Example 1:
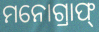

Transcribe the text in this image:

ମନୋଗ୍ରାଫ୍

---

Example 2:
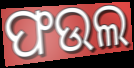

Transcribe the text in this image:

ଫଉଲ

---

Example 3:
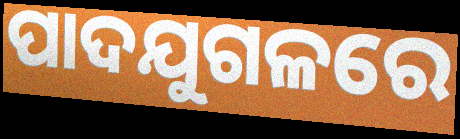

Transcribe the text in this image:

ପାଦଯୁଗଳରେ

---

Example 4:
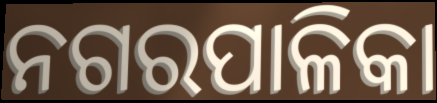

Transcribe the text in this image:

ନଗରପାଳିକା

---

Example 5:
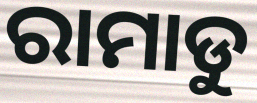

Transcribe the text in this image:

ରାମାଡୁ